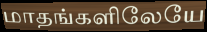
மாதங்களிலேயே